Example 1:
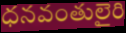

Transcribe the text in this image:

ధనవంతులైరి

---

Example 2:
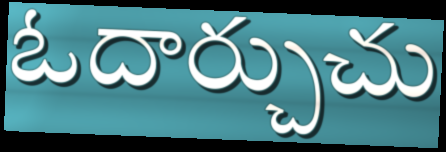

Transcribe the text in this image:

ఓదార్చుచు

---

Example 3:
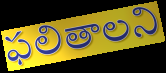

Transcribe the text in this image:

ఫలితాలని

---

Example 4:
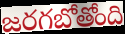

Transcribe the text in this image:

జరగబోతోంది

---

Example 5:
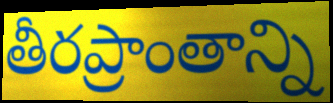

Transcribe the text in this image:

తీరప్రాంతాన్ని